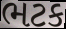
ભટક